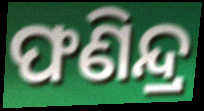
ଫଣିନ୍ଦ୍ର